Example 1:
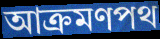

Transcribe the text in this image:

আক্রমণপথ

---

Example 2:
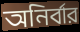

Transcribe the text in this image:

অনির্বার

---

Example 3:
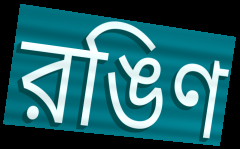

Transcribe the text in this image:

রঙিণ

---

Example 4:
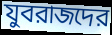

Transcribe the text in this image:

যুবরাজদের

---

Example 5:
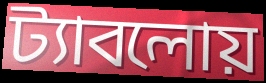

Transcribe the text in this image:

ট্যাবলোয়